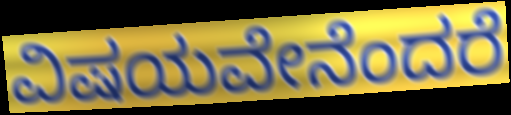
ವಿಷಯವೇನೆಂದರೆ